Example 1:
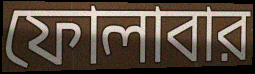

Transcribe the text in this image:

ফোলাবার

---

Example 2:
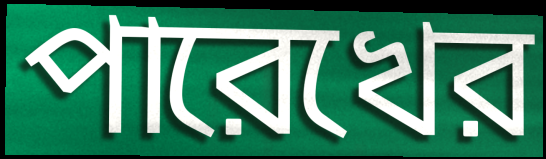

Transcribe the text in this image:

পারেখের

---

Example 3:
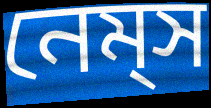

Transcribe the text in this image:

নেম্‌স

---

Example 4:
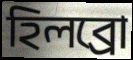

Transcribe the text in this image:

হিলব্রো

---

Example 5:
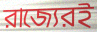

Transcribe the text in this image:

রাজ্যেরই